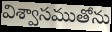
విశ్వాసముతోను